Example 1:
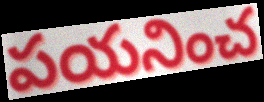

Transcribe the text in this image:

పయనించ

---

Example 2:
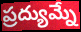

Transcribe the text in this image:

ప్రద్యుమ్నే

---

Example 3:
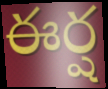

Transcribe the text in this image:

ఈర్ష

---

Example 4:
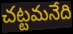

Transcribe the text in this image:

చట్టమనేది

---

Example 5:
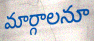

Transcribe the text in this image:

మార్గాలనూ